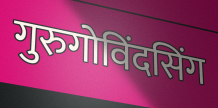
गुरुगोविंदसिंग